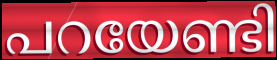
പറയേണ്ടി